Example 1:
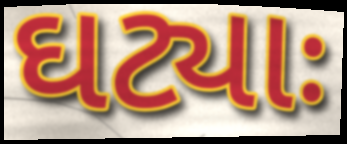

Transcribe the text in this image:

ઘટ્યાઃ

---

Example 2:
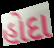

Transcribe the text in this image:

હોદા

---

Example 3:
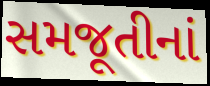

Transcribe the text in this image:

સમજૂતીનાં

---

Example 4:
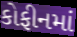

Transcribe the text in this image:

કોફીનમાં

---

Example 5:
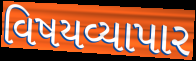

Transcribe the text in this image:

વિષયવ્યાપાર